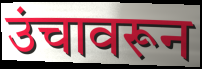
उंचावरून